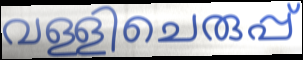
വള്ളിചെരുപ്പ്